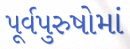
પૂર્વપુરુષોમાં